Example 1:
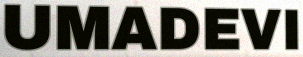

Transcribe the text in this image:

UMADEVI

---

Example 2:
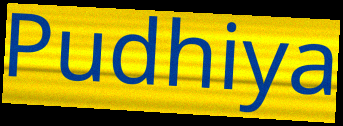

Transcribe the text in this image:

Pudhiya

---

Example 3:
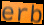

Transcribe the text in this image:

erb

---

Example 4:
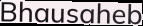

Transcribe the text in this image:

Bhausaheb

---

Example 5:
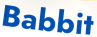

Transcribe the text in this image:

Babbit